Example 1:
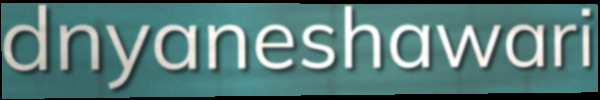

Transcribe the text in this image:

dnyaneshawari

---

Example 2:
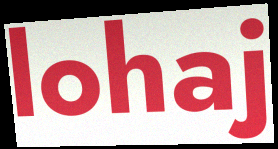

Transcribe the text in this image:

lohaj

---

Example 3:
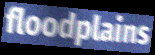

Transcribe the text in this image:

floodplains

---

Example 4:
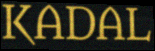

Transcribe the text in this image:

KADAL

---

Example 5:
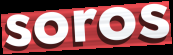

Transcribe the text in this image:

soros